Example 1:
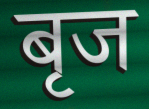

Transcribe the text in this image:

बृज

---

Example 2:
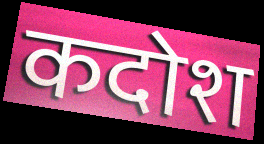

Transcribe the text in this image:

कदोश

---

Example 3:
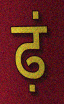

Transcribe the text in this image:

ढ़ं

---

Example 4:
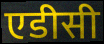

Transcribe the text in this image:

एडीसी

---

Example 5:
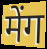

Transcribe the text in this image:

मेंग